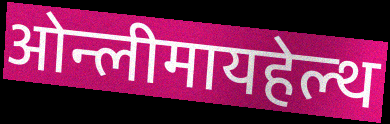
ओन्लीमायहेल्थ